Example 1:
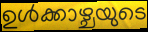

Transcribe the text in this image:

ഉൾക്കാഴ്ചയുടെ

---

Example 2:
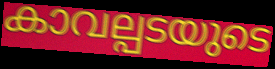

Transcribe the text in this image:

കാവല്പടയുടെ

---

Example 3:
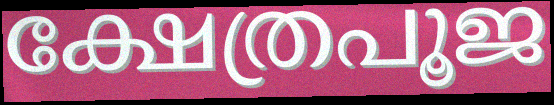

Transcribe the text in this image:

ക്ഷേത്രപൂജ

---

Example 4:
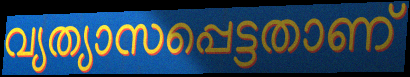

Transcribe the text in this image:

വ്യത്യാസപ്പെട്ടതാണ്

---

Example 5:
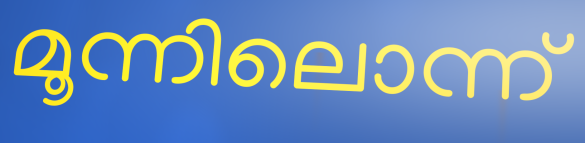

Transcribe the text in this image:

മൂന്നിലൊന്ന്